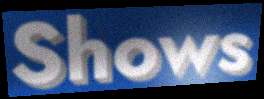
Shows